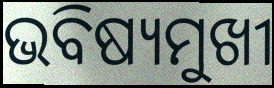
ଭବିଷ୍ୟମୁଖୀ